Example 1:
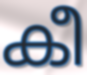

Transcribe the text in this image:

കീ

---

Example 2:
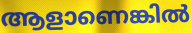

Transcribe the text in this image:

ആളാണെങ്കിൽ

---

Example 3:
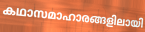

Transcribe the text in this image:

കഥാസമാഹാരങ്ങളിലായി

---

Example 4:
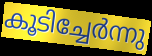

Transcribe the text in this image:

കൂടിച്ചേർന്നു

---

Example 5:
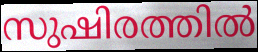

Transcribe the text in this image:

സുഷിരത്തിൽ